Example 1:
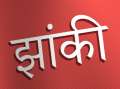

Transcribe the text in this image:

झांकी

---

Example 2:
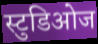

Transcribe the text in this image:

स्टुडिओज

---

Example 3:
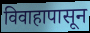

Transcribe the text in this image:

विवाहापासून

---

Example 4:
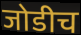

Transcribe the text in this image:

जोडीच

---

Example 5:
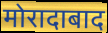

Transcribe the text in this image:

मोरादाबाद